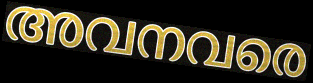
അവനവരെ